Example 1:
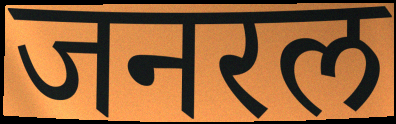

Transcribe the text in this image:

जनरल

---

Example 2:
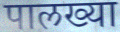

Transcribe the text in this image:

पालख्या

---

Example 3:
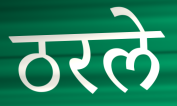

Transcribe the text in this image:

ठरले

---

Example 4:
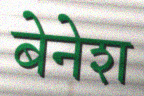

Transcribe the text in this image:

बेनेश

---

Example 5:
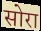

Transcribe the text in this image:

सोरा